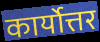
कार्योत्तर